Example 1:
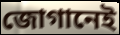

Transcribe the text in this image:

জোগানেই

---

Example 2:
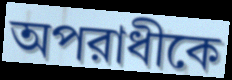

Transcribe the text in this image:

অপরাধীকে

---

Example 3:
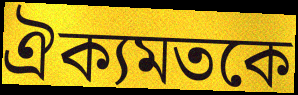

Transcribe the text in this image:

ঐক্যমতকে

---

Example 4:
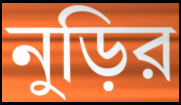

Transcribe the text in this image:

নুড়ির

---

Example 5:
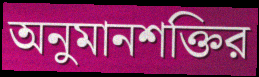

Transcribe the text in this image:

অনুমানশক্তির